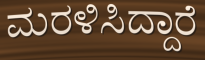
ಮರಳಿಸಿದ್ದಾರೆ